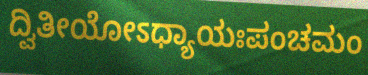
ದ್ವಿತೀಯೋಽಧ್ಯಾಯಃಪಂಚಮಂ